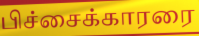
பிச்சைக்காரரை